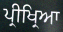
ਪ੍ਰੀਖ੍ਰਿਆ